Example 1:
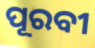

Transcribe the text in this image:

ପୂରବୀ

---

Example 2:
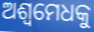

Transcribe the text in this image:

ଅଶ୍ୱମେଧକୁ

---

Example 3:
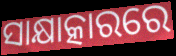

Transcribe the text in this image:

ସାକ୍ଷାତ୍କାରରେ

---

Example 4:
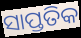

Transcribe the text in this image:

ସାପ୍ତତିକ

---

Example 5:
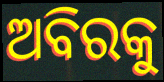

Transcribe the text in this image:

ଅବିରକୁ